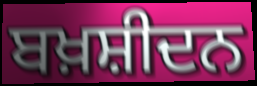
ਬਖ਼ਸ਼ੀਦਨ